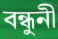
বন্ধুনী